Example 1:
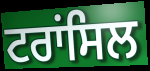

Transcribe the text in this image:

ਟਰਾਂਸਿਲ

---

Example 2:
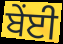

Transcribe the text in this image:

ਬੇਂਈ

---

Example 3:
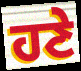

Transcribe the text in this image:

ਹਣੇ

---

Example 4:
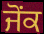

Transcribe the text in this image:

ਜੋਂਕ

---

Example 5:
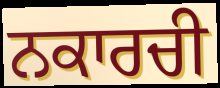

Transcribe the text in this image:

ਨਕਾਰਚੀ